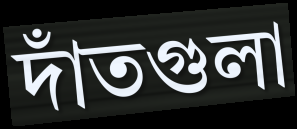
দাঁতগুলা